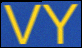
VY